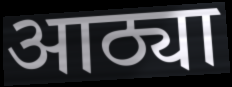
आठ्या